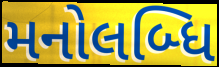
મનોલબ્ધિ